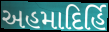
અહમાદિર્હિ